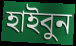
হাইবুন